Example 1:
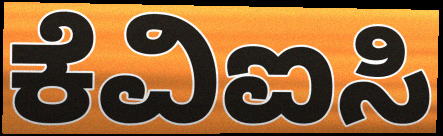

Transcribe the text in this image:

ಕೆವಿಐಸಿ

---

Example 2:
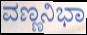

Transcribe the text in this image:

ವಣ್ಣನಿಭಾ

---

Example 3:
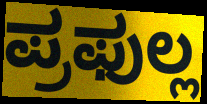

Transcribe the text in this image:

ಪ್ರಫುಲ್ಲ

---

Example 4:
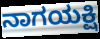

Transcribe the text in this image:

ನಾಗಯಕ್ಷಿ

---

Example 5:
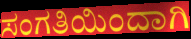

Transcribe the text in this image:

ಸಂಗತಿಯಿಂದಾಗಿ